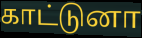
காட்டுனா